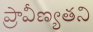
ప్రావీణ్యతని